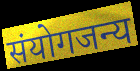
संयोगजन्य